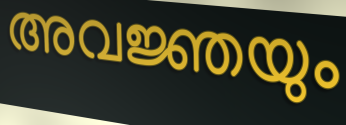
അവജ്ഞയും